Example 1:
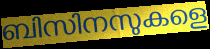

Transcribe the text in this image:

ബിസിനസുകളെ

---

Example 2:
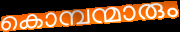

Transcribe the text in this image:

കൊമ്പന്മാരും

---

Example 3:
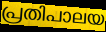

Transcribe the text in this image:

പ്രതിപാലയ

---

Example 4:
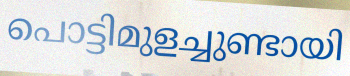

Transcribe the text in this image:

പൊട്ടിമുളച്ചുണ്ടായി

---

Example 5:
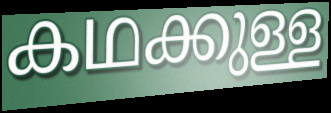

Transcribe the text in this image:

കഥക്കുള്ള